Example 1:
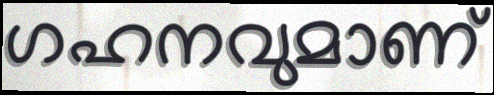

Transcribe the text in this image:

ഗഹനവുമാണ്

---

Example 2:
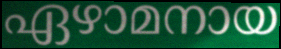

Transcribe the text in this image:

ഏഴാമനായ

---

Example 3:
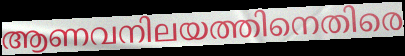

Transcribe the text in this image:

ആണവനിലയത്തിനെതിരെ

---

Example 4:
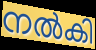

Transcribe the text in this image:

നൽകി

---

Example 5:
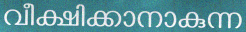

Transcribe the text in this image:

വീക്ഷിക്കാനാകുന്ന